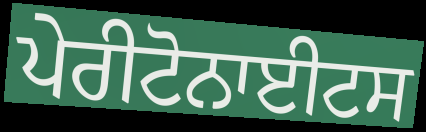
ਪੇਰੀਟੋਨਾਈਟਸ